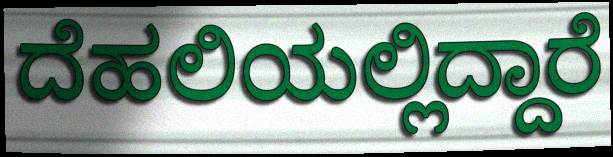
ದೆಹಲಿಯಲ್ಲಿದ್ದಾರೆ